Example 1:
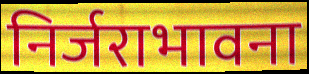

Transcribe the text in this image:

निर्जराभावना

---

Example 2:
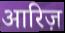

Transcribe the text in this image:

आरिज़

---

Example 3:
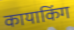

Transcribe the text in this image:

कायाकिंग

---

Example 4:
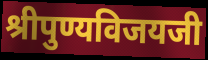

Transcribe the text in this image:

श्रीपुण्यविजयजी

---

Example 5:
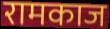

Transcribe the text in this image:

रामकाज